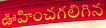
ఊహించగలిగిన